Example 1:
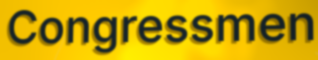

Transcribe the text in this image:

Congressmen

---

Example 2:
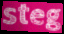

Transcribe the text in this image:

steg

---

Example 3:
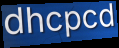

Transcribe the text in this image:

dhcpcd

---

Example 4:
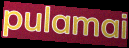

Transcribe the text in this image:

pulamai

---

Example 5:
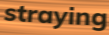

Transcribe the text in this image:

straying